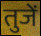
तुजें